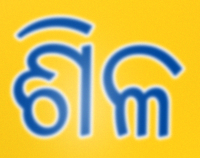
ଶିଳ